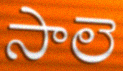
సాలె